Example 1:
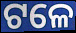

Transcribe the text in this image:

ଟଳେ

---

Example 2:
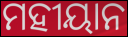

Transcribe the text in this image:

ମହୀୟାନ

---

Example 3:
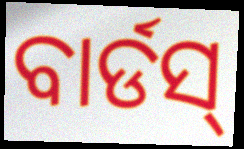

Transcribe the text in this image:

ବାର୍ଡସ୍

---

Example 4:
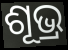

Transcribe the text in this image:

ଶୂଭ୍ର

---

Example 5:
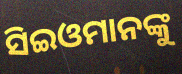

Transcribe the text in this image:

ସିଇଓମାନଙ୍କୁ